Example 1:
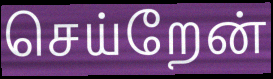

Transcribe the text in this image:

செய்றேன்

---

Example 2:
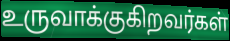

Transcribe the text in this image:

உருவாக்குகிறவர்கள்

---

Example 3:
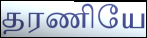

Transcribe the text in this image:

தரணியே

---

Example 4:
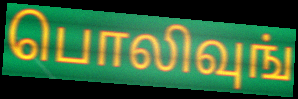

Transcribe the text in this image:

பொலிவுங்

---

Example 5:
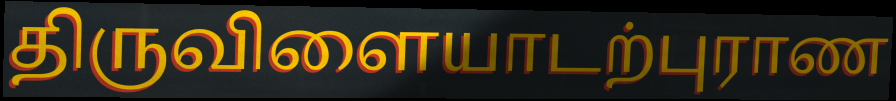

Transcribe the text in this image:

திருவிளையாடற்புராண